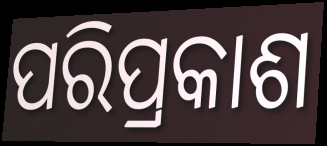
ପରିପ୍ରକାଶ